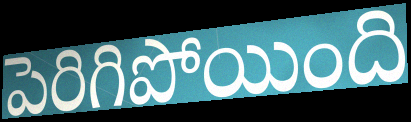
పెరిగిపోయింది